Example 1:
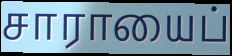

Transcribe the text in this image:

சாராயைப்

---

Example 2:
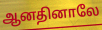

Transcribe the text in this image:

ஆனதினாலே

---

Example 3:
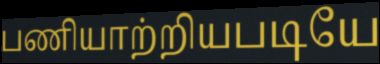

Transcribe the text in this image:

பணியாற்றியபடியே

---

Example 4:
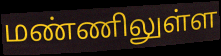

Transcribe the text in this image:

மண்ணிலுள்ள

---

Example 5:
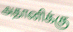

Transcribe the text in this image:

அதானிக்கு